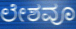
ಲೇಶವೂ